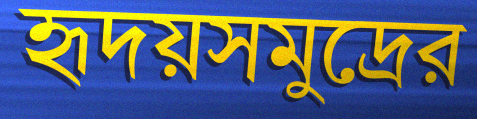
হৃদয়সমুদ্রের